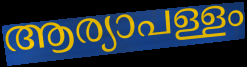
ആര്യാപള്ളം